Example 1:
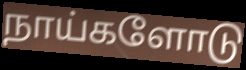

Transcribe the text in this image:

நாய்களோடு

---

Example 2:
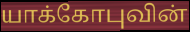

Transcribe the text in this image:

யாக்கோபுவின்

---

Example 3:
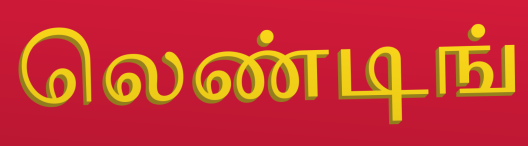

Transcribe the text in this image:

லெண்டிங்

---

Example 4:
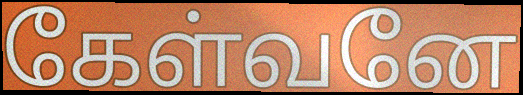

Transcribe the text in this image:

கேள்வனே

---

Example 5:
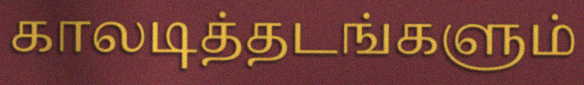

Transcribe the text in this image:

காலடித்தடங்களும்